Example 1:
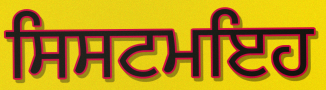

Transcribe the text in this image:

ਸਿਸਟਮਇਹ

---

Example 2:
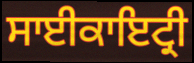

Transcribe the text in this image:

ਸਾਈਕਾਇਟ੍ਰੀ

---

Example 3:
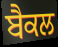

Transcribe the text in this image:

ਬੈਕਲ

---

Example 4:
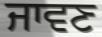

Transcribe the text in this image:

ਜਾਵਣ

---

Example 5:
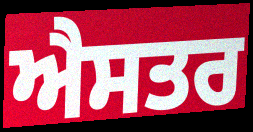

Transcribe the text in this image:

ਐਸਤਰ